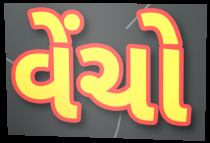
વેંચો